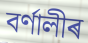
বৰ্ণালীৰ